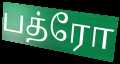
பத்ரோ